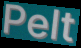
Pelt